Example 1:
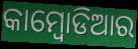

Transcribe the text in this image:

କାମ୍ବୋଡିଆର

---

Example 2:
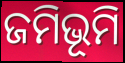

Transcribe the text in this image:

ଜମିଭୂମି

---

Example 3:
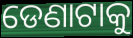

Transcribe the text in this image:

ଡେଣାଟାକୁ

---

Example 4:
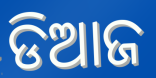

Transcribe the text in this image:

ଡିଆଜ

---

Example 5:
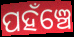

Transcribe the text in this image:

ପହଁଞ୍ଚେ